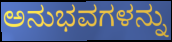
ಅನುಭವಗಳನ್ನು